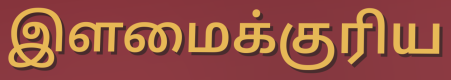
இளமைக்குரிய